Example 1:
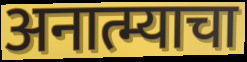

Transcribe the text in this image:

अनात्म्याचा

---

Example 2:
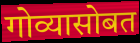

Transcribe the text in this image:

गोव्यासोबत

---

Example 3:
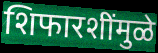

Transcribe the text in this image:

शिफारशींमुळे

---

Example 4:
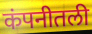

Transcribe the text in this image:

कंपनीतली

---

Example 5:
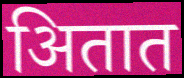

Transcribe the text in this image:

अितात